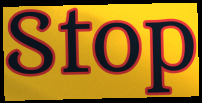
Stop